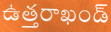
ఉత్తరాఖండ్